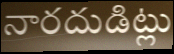
నారదుడిట్లు